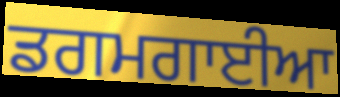
ਡਗਮਗਾਈਆ